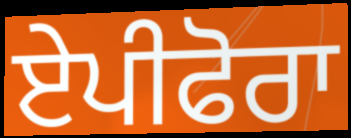
ਏਪੀਫੋਰਾ